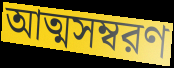
আত্মসম্বরণ